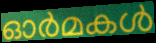
ഓർമകൾ